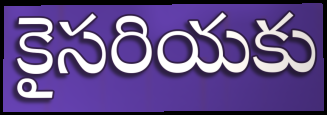
కైసరియకు